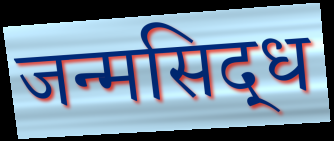
जन्मसिद्ध